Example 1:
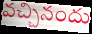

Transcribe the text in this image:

వచ్చినందు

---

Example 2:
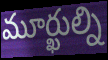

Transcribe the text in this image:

మూర్ఖుల్ని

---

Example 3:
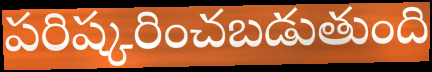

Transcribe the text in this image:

పరిష్కరించబడుతుంది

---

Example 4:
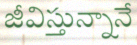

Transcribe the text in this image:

జీవిస్తున్నానే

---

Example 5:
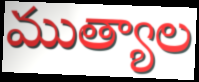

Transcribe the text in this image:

ముత్యాల